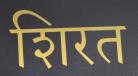
शिरत